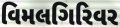
વિમલગિરિવર